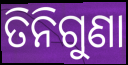
ତିନିଗୁଣା